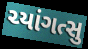
ચ્યાંગત્સુ